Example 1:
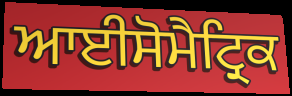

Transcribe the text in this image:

ਆਈਸੋਮੈਟ੍ਰਿਕ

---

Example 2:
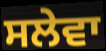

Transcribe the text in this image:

ਸਲੇਵਾ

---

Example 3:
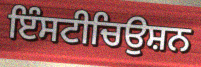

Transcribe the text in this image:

ਇੰਸਟੀਚਿਉਸ਼ਨ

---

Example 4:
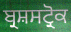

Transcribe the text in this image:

ਬ੍ਰਸ਼ਸਟ੍ਰੋਕ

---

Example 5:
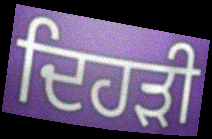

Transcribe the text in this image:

ਦਿਹੜੀ